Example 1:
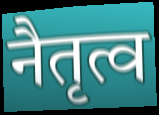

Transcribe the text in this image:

नैतृत्व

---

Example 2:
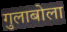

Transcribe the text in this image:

गुलाबोला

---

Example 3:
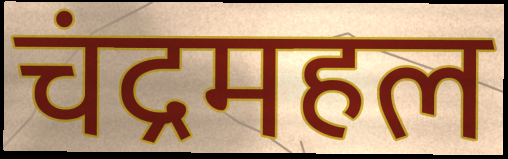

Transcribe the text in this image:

चंद्रमहल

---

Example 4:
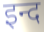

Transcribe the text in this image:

इन्द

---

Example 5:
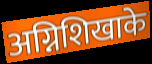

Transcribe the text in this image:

अग्निशिखाके